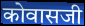
कोवासजी